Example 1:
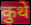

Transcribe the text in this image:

कुथे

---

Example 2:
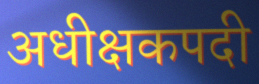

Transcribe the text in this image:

अधीक्षकपदी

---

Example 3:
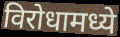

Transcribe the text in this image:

विरोधामध्ये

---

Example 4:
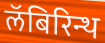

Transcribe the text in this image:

लॅबिरिन्थ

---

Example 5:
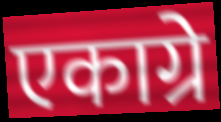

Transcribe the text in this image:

एकाग्रे